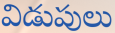
విడుపులు